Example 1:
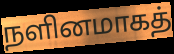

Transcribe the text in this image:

நளினமாகத்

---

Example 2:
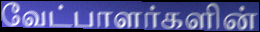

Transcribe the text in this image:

வேட்பாளர்களின்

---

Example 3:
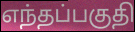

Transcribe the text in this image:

எந்தப்பகுதி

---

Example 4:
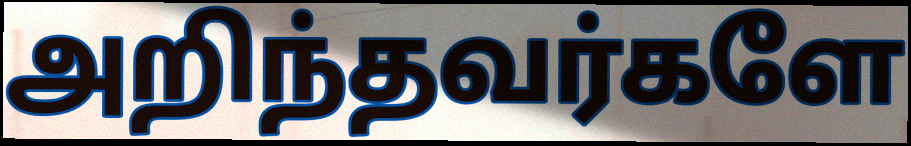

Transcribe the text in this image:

அறிந்தவர்களே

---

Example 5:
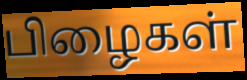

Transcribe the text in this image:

பிழைகள்